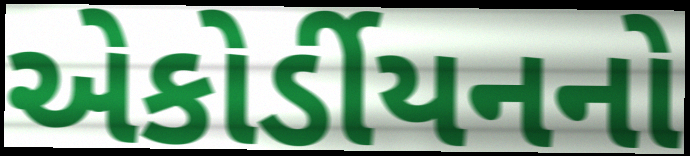
એકોર્ડીયનનો